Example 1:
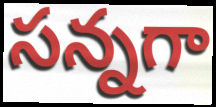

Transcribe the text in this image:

సన్నగా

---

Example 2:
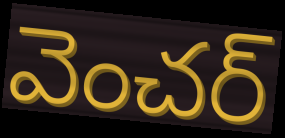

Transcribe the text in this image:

వెంచర్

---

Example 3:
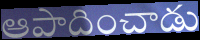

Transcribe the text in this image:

ఆపాదించాడు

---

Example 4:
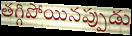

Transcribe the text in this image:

తగ్గిపోయినప్పుడు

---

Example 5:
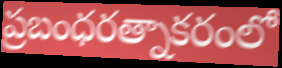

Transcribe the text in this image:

ప్రబంధరత్నాకరంలో